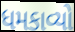
ધમકાવ્યો